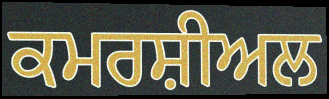
ਕਮਰਸ਼ੀਅਲ